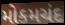
મોકમચંદ